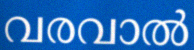
വരവാൽ